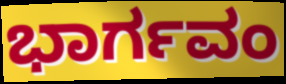
ಭಾರ್ಗವಂ